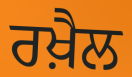
ਰਖ਼ੈਲ